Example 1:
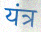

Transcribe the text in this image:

यंत्र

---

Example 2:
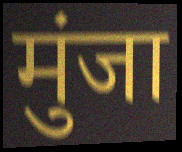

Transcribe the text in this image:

मुंजा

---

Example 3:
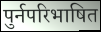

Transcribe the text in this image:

पुर्नपरिभाषित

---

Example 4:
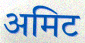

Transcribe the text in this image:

अमिट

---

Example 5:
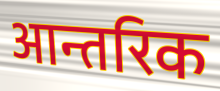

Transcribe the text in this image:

आन्तरिक